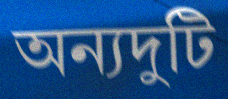
অন্যদুটি